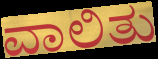
ವಾಲಿತು